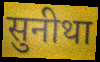
सुनीथा